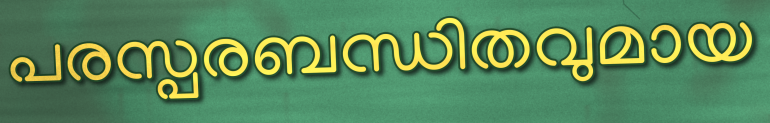
പരസ്പരബന്ധിതവുമായ